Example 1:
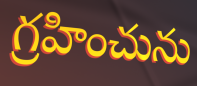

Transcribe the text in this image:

గ్రహించును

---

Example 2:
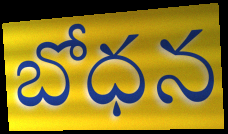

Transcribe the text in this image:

బోధన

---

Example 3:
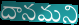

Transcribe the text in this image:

దానమని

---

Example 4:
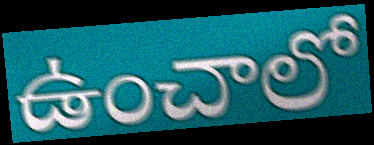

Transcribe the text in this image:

ఉంచాలో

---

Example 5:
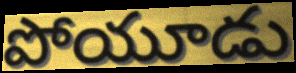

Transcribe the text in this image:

పోయూడు